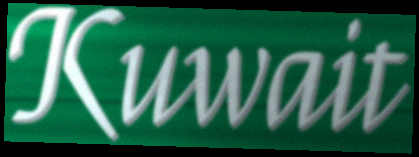
Kuwait